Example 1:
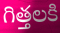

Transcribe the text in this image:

గిత్తలకి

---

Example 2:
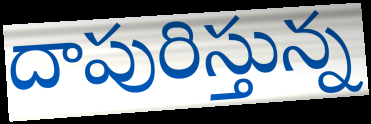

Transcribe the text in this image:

దాపురిస్తున్న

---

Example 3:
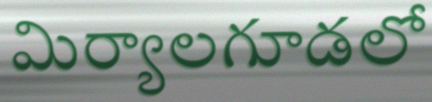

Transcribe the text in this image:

మిర్యాలగూడలో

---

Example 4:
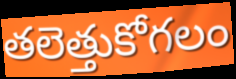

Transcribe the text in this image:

తలెత్తుకోగలం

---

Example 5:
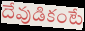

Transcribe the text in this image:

దేవుడికంటే